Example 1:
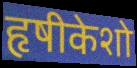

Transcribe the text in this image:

हृषीकेशो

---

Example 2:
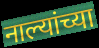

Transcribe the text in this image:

नाल्यांच्या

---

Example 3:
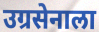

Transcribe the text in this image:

उग्रसेनाला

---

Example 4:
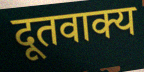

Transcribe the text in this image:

दूतवाक्य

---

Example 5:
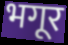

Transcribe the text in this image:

भगूर